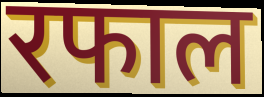
रफाल